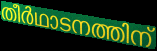
തീർഥാടനത്തിന്